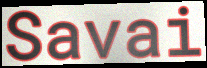
Savai